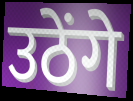
उठेंगे